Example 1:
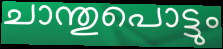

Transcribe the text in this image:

ചാന്തുപൊട്ടും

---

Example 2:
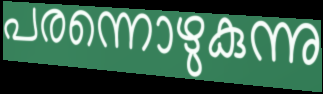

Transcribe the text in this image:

പരന്നൊഴുകുന്നു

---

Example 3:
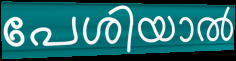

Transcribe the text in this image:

പേശിയാൽ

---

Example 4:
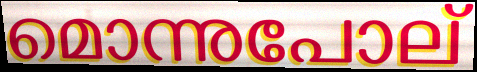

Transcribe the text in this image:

മൊന്നുപോല്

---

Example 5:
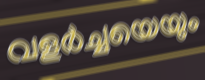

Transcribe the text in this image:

വളർച്ചയെയും